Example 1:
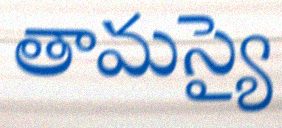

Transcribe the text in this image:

తామస్యై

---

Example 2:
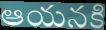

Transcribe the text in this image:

ఆయనకి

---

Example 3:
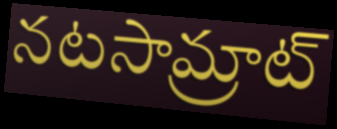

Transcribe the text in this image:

నటసామ్రాట్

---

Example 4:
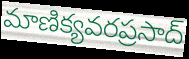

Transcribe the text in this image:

మాణిక్యవరప్రసాద్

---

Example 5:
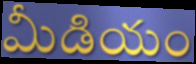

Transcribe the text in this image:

మీడియం